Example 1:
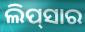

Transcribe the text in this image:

ଲିପ୍‌ସାର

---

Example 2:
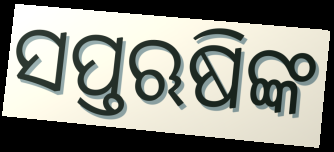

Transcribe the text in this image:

ସପ୍ତଋଷିଙ୍କ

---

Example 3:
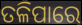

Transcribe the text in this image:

ତଳିପାରେ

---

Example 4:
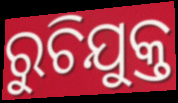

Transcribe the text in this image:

ରୁଚିଯୁକ୍ତ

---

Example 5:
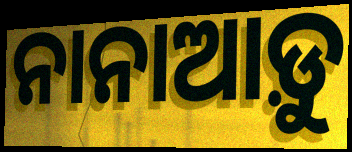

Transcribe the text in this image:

ନାନାଆଡ଼ୁ